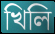
খিলি